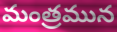
మంత్రమున